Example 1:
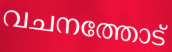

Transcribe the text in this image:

വചനത്തോട്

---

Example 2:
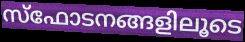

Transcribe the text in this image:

സ്ഫോടനങ്ങളിലൂടെ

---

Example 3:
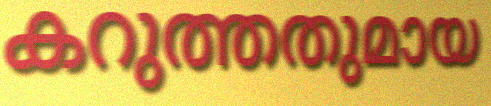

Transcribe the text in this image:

കറുത്തതുമായ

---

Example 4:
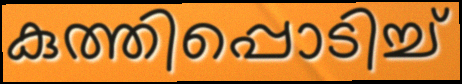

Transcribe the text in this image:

കുത്തിപ്പൊടിച്ച്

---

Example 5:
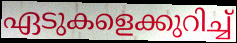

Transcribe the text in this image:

ഏടുകളെക്കുറിച്ച്